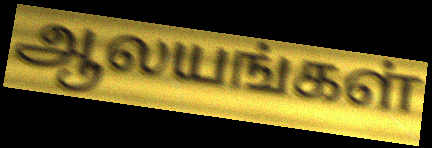
ஆலயங்கள்